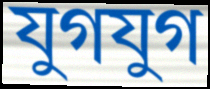
যুগযুগ